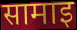
सामाइ